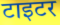
टाइटर